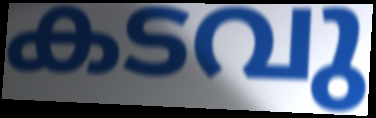
കടവു